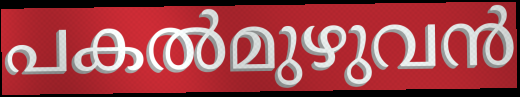
പകൽമുഴുവൻ